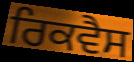
ਰਿਕਵੈਸ